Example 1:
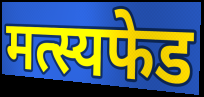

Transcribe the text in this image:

मत्स्यफेड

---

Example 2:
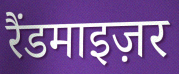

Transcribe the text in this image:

रैंडमाइज़र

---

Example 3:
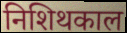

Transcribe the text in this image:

निशिथकाल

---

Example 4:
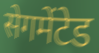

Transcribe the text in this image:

सेगमेंटेड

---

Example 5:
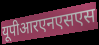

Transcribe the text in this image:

यूपीआरएनएसएस